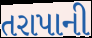
તરાપાની